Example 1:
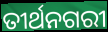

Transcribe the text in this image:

ତୀର୍ଥନଗରୀ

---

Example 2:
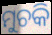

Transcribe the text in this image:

ମୁଚକି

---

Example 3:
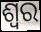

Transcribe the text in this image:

ଶ୍ୱର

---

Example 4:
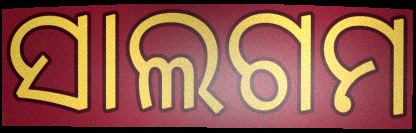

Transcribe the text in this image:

ସାଲଗମ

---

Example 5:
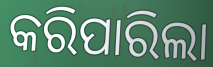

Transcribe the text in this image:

କରିପାରିଲା